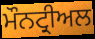
ਮੌਨਟ੍ਰੀਅਲ